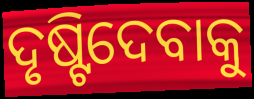
ଦୃଷ୍ଟିଦେବାକୁ